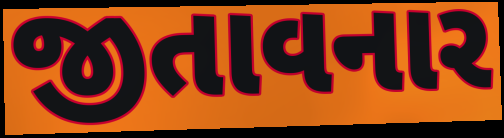
જીતાવનાર